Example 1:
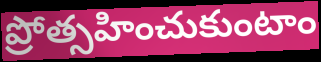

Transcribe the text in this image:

ప్రోత్సహించుకుంటాం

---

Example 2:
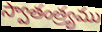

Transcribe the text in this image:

స్వాతంత్ర్యము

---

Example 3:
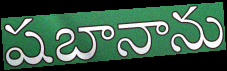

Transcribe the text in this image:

షబానాను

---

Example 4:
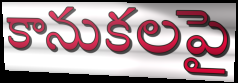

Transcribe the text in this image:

కానుకలపై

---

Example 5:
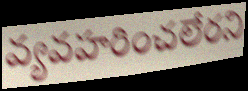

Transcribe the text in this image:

వ్యవహరించలేరని